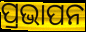
ପ୍ରଭାପନ